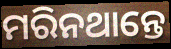
ମରିନଥାନ୍ତେ